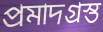
প্রমাদগ্রস্ত